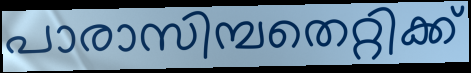
പാരാസിമ്പതെറ്റിക്ക്